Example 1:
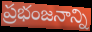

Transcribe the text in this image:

ప్రభంజనాన్ని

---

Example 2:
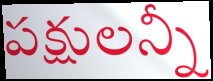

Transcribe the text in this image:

పక్షులన్నీ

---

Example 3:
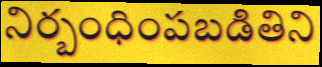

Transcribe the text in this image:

నిర్బంధింపబడితిని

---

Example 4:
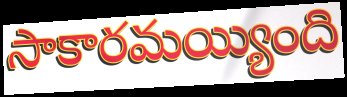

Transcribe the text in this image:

సాకారమయ్యింది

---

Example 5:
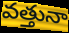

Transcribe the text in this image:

వత్తునా